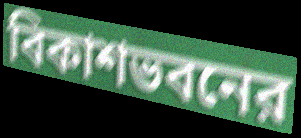
বিকাশভবনের